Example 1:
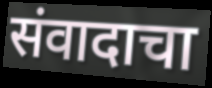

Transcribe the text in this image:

संवादाचा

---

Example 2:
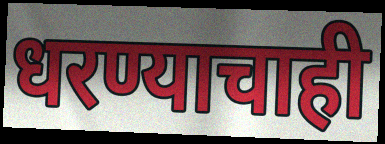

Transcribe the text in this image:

धरण्याचाही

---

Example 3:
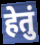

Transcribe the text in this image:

हेतुं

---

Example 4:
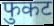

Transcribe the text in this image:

फुकट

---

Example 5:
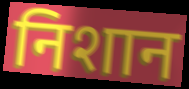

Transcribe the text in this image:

निशान